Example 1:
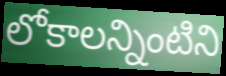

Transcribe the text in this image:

లోకాలన్నింటిని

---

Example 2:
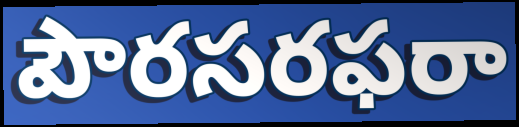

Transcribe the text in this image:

పౌరసరఫరా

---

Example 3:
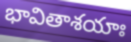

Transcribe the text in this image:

భావితాశయాః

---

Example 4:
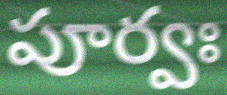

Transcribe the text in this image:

పూర్వః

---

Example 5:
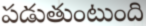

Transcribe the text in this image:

పడుతుంటుంది